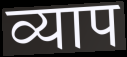
व्याप